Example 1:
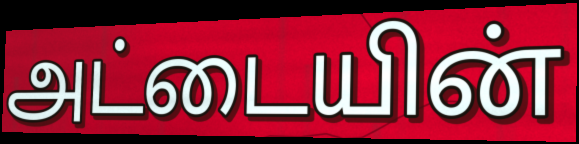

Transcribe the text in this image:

அட்டையின்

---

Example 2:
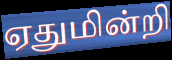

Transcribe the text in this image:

ஏதுமின்றி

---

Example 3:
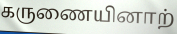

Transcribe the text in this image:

கருணையினாற்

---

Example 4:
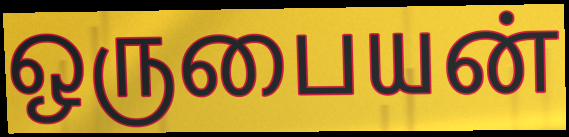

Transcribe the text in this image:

ஒருபையன்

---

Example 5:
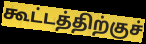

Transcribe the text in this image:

கூட்டத்திற்குச்